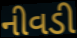
નીવડી